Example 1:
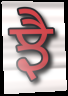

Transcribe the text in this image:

ਝੈ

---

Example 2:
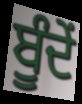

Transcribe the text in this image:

ਬੂੰਦੇਂ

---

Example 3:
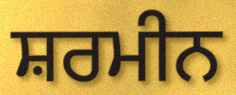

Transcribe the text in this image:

ਸ਼ਰਮੀਨ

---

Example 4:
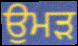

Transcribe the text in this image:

ਉਮੜ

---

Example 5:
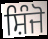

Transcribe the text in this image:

ਸ਼ਿੰਜੋ